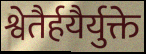
श्वेतैर्हयैर्युक्ते